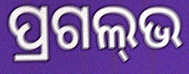
ପ୍ରଗଲ୍‌ଭ